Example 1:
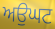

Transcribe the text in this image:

ਅਉਘਟ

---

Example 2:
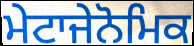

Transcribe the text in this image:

ਮੇਟਾਜੇਨੋਮਿਕ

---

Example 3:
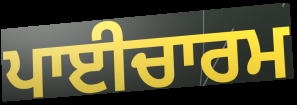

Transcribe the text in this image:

ਪਾਈਚਾਰਮ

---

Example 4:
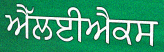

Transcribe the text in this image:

ਐੱਲਈਐਕਸ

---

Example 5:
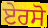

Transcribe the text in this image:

ਏਰਸੋ